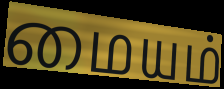
மையம்